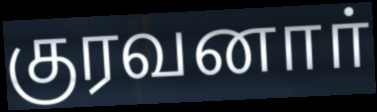
குரவனார்